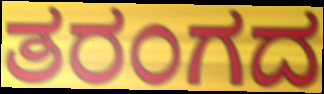
ತರಂಗದ